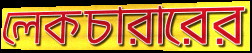
লেকচারারের